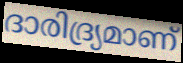
ദാരിദ്ര്യമാണ്